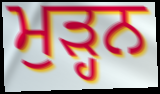
ਮੁੜ੍ਹਨ